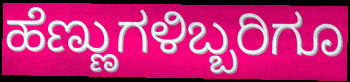
ಹೆಣ್ಣುಗಳಿಬ್ಬರಿಗೂ